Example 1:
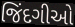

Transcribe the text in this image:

જિંદગીઓ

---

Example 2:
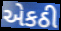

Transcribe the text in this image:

એકઠી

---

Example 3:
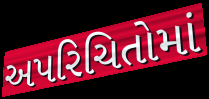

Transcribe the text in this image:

અપરિચિતોમાં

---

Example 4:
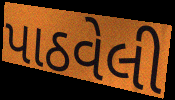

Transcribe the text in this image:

પાઠવેલી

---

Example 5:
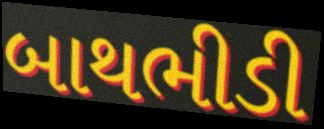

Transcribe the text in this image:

બાથભીડી